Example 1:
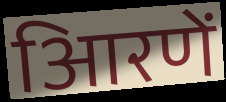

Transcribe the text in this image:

आिरणें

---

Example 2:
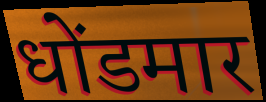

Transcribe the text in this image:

धोंडमार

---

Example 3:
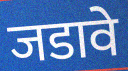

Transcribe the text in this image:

जडावे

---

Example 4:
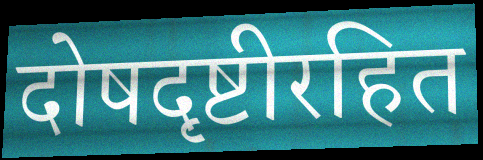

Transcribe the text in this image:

दोषदृष्टीरहित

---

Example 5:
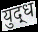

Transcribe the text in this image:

युद्ध